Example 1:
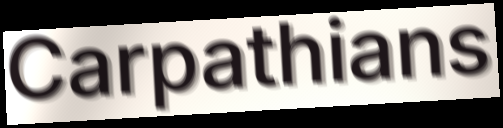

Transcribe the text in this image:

Carpathians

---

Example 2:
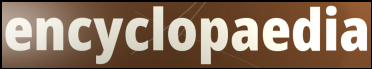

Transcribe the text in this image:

encyclopaedia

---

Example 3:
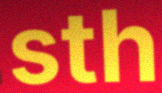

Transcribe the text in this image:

sth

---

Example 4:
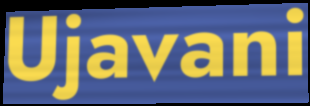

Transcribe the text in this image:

Ujavani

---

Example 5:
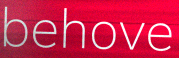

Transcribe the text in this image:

behove